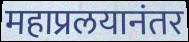
महाप्रलयानंतर